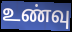
உண்வு